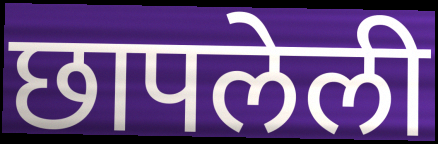
छापलेली